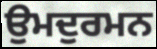
ਉਮਦੁਰਮਨ